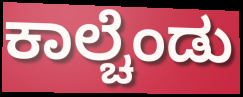
ಕಾಲ್ಚೆಂಡು